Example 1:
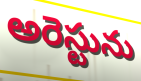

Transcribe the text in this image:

అరెస్టును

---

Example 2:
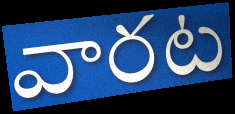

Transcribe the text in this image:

వారట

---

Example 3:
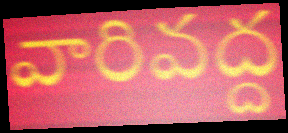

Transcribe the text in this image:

వారివద్ద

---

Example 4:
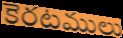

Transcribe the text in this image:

కెరటములు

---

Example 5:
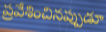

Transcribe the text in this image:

ప్రవేశించినప్పుడూ